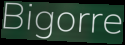
Bigorre